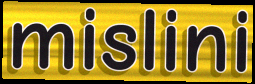
mislini